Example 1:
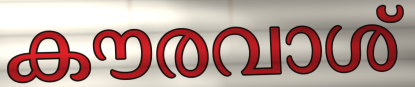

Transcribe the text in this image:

കൗരവാശ്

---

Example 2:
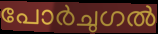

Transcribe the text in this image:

പോർചുഗൽ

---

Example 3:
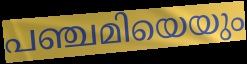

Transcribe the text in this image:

പഞ്ചമിയെയും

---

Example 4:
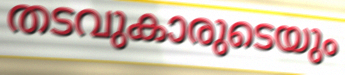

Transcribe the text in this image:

തടവുകാരുടെയും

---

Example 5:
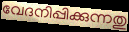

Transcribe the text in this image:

വേദനിപ്പിക്കുന്നതു